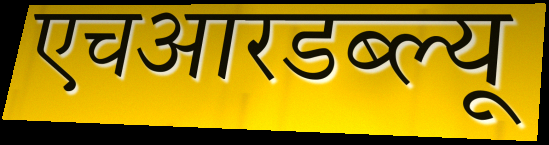
एचआरडब्ल्यू